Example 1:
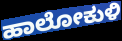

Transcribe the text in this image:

ಹಾಲೋಕುಳಿ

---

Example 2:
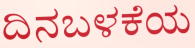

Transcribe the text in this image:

ದಿನಬಳಕೆಯ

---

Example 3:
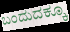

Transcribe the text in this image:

ಬಂದುದಕ್ಕೂ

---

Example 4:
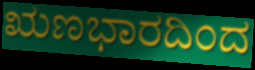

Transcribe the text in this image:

ಋಣಭಾರದಿಂದ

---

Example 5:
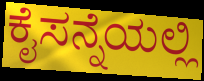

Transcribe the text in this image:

ಕೈಸನ್ನೆಯಲ್ಲಿ